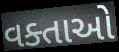
વક્તાઓ